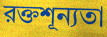
রক্তশূন্যতা